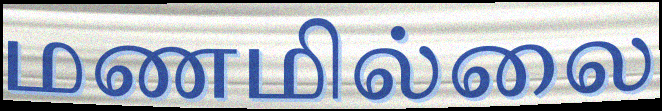
மணமில்லை